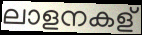
ലാളനകള്